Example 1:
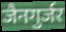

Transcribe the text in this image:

जैनगुर्जर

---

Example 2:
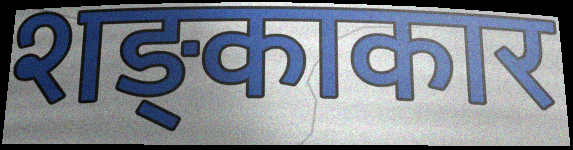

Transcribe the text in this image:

शङ्काकार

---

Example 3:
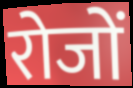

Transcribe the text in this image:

रोजों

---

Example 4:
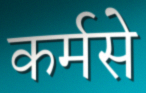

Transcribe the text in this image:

कर्मसे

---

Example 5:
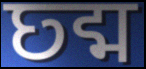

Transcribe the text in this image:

छ्द्म